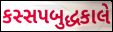
કસ્સપબુદ્ધકાલે